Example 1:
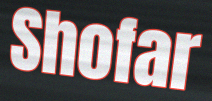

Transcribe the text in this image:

Shofar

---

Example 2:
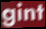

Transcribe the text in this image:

gint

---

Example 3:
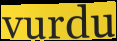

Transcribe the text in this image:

vurdu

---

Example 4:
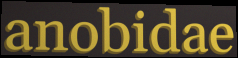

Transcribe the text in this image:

anobidae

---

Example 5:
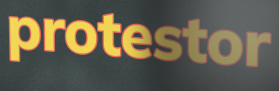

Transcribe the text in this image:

protestor